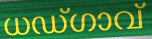
ധഡ്ഗാവ്